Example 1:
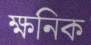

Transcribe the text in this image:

ক্ষনিক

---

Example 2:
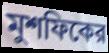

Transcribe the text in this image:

মুশফিকের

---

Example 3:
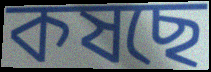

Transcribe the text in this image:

কষছে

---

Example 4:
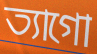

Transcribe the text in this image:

ত্যাগো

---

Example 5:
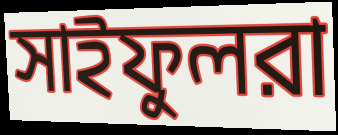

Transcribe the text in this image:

সাইফুলরা